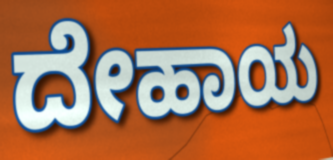
ದೇಹಾಯ